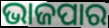
ଭାଜପାର